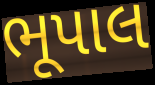
ભૂપાલ